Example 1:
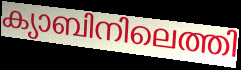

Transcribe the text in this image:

ക്യാബിനിലെത്തി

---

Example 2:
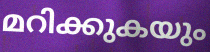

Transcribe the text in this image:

മറിക്കുകയും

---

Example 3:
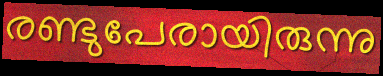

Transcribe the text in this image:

രണ്ടുപേരായിരുന്നു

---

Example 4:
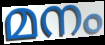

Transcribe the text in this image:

മനം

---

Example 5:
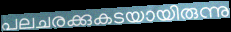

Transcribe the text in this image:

പലചരക്കുകടയായിരുന്നു